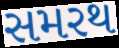
સમરથ